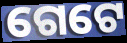
ଗେଟେ